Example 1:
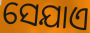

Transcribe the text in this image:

ସେଯାଏ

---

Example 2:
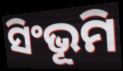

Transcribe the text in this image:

ସିଂଭୂମି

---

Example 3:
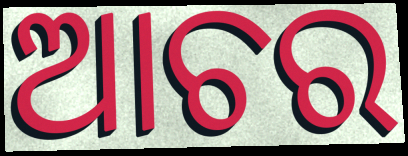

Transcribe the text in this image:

ଆଚର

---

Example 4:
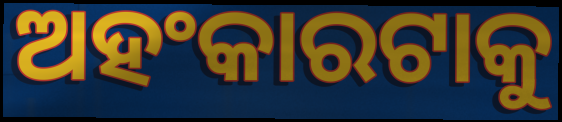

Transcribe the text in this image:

ଅହଂକାରଟାକୁ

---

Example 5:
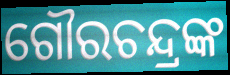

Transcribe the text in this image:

ଗୌରଚନ୍ଦ୍ରଙ୍କ